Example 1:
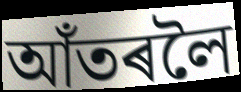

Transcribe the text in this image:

আঁতৰলৈ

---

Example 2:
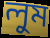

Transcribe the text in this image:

লুম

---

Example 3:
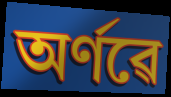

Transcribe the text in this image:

অৰ্ণৱে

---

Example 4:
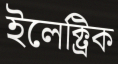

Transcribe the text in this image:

ইলেক্ট্ৰিক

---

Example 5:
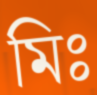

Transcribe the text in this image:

মিঃ